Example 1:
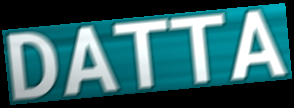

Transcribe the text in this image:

DATTA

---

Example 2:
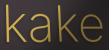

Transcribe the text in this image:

kake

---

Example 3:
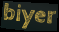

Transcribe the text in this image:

biyer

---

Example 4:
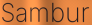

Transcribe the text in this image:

Sambur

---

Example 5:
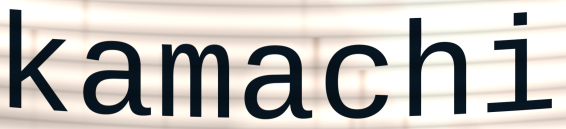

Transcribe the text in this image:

kamachi